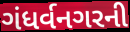
ગંધર્વનગરની